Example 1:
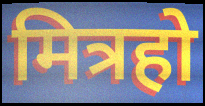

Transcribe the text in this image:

मित्रहो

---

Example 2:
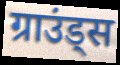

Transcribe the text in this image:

ग्राउंड्स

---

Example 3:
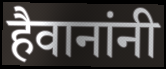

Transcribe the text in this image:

हैवानांनी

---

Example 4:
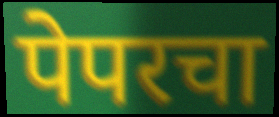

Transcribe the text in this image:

पेपरचा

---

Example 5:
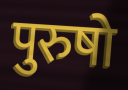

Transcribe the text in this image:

पुरुषो